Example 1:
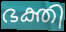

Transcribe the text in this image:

ഭക്തി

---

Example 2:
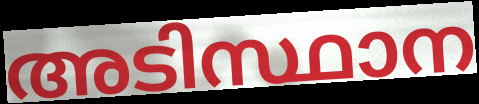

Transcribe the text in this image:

അടിസ്ഥാന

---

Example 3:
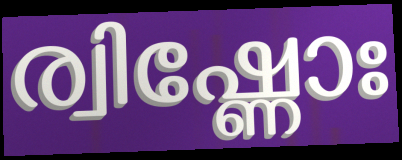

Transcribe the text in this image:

ര്വിഷ്ണോഃ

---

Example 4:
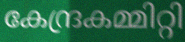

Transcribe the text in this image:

കേന്ദ്രകമ്മിറ്റി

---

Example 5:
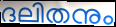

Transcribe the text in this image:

ദലിതനും